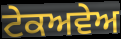
ਟੇਕਅਵੇਅ